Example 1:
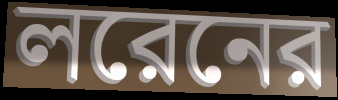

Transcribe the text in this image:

লরেনের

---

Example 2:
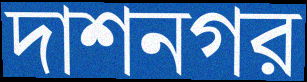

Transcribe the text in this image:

দাশনগর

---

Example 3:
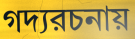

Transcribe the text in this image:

গদ্যরচনায়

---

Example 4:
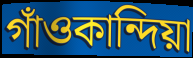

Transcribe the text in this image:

গাঁওকান্দিয়া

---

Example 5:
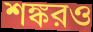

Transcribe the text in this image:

শঙ্করও